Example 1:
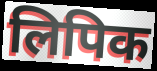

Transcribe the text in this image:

लिपिक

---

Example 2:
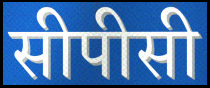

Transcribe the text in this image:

सीपीसी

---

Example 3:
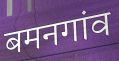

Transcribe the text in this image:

बमनगांव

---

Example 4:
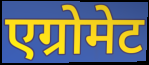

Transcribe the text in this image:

एग्रोमेट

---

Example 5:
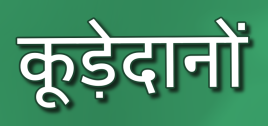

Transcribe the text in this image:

कूड़ेदानों